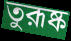
তুরূষ্ক